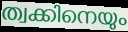
ത്വക്കിനെയും